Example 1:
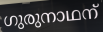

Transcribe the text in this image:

ഗുരുനാഥന്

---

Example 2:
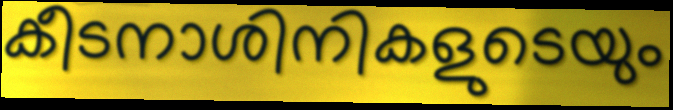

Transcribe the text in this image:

കീടനാശിനികളുടെയും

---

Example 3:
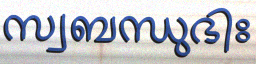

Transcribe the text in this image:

സ്വബന്ധുഭിഃ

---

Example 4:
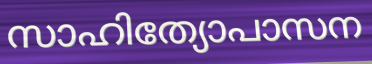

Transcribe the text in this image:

സാഹിത്യോപാസന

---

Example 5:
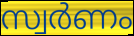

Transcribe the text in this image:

സ്വർണം